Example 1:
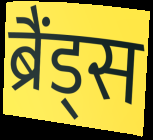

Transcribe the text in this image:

ब्रैंड्स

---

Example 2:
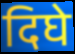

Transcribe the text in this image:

दिघे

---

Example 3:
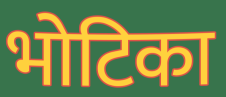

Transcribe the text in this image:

भोटिका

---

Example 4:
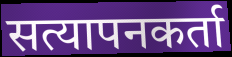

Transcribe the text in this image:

सत्यापनकर्ता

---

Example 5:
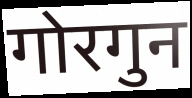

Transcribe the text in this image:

गोरगुन